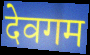
देवगम